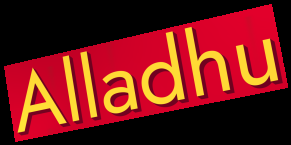
Alladhu